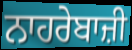
ਨਾਹਰੇਬਾਜ਼ੀ